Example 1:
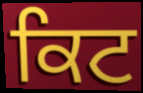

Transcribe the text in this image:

ਕਿਟ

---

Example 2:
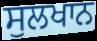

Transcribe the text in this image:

ਸੁਲਖਾਨ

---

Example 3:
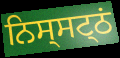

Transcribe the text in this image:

ਨਿਸ੍ਸਟ੍ਠਂ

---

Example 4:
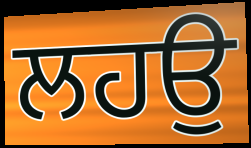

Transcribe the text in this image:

ਲਹਉ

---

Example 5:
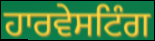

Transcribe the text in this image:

ਹਾਰਵੇਸਟਿੰਗ